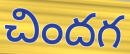
చిందగ